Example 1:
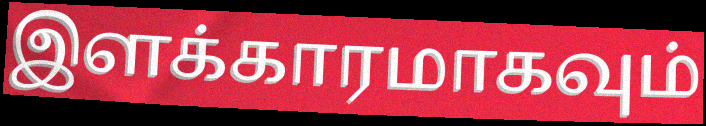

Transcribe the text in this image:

இளக்காரமாகவும்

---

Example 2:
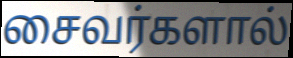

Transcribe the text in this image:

சைவர்களால்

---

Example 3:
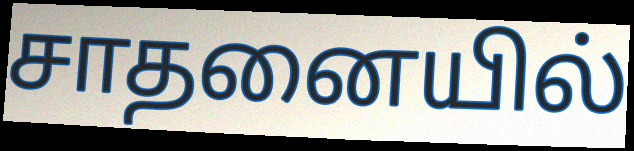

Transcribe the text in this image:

சாதனையில்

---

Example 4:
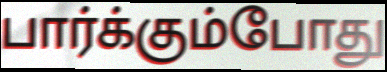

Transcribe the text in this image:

பார்க்கும்போது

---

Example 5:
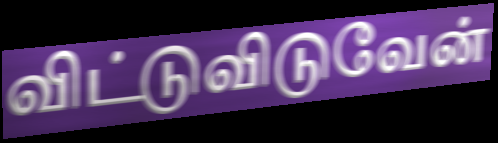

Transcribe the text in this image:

விட்டுவிடுவேன்